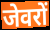
जेवरों